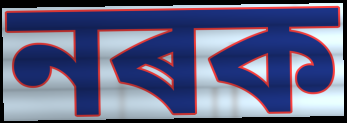
নৰক